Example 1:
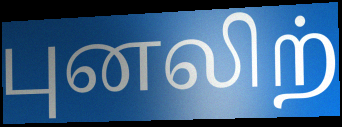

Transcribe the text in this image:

புனலிற்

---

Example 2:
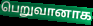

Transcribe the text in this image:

பெறுவானாக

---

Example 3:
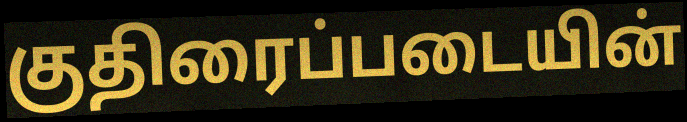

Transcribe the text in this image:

குதிரைப்படையின்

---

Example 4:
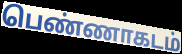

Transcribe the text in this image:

பெண்ணாகடம்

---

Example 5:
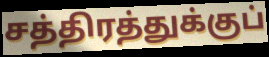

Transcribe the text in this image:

சத்திரத்துக்குப்